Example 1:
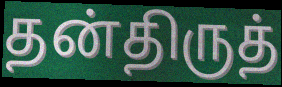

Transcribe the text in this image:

தன்திருத்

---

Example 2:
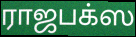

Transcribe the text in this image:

ராஜபக்ஸ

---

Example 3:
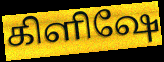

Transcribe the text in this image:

கிளிஷே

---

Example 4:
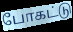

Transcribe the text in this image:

போகட்டு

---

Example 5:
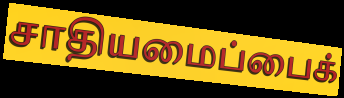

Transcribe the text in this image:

சாதியமைப்பைக்